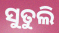
ସୁତୁଲି